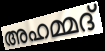
അഹമ്മദ്